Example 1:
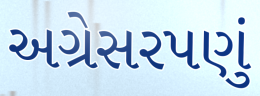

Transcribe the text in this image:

અગ્રેસરપણું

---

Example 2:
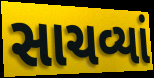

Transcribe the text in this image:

સાચવ્યાં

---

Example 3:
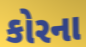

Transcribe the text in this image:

કોરના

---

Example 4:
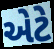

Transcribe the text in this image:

એટે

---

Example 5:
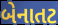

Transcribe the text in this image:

બેનાતટ